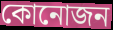
কোনোজন